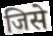
जिसे